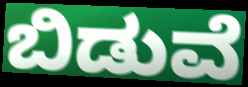
ಬಿಡುವೆ